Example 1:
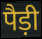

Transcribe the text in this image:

पैड़ी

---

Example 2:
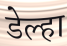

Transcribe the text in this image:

डेल्हा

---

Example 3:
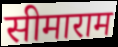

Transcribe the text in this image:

सीमाराम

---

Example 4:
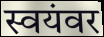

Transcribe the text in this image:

स्वयंवर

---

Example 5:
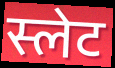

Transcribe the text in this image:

स्लेट